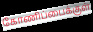
கோணிப்பைக்குள்